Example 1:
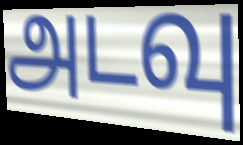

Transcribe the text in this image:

அடவு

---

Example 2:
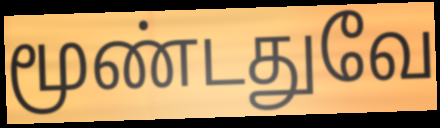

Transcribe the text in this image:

மூண்டதுவே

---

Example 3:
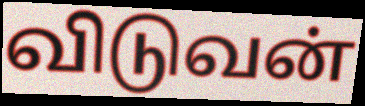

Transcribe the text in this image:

விடுவன்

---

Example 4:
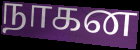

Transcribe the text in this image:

நாகன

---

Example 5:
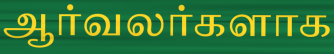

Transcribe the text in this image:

ஆர்வலர்களாக